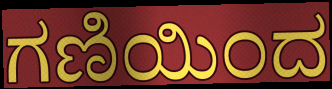
ಗಣಿಯಿಂದ